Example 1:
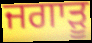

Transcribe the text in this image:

ਜਗਾੜੂ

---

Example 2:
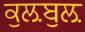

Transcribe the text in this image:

ਕੁਲ਼ਬੁਲ਼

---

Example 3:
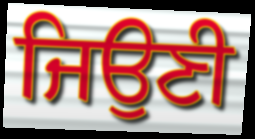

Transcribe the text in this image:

ਜਿਉਣੀ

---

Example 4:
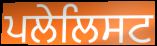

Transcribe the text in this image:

ਪਲੇਲਿਸਟ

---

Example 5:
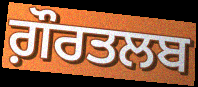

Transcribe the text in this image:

ਗ਼ੌਰਤਲਬ